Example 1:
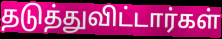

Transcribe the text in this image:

தடுத்துவிட்டார்கள்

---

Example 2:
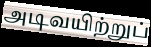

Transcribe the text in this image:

அடிவயிற்றுப்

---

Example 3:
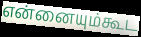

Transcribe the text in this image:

என்னையும்கூட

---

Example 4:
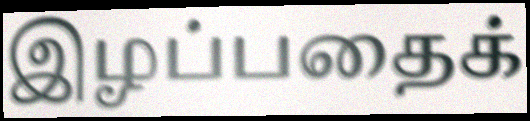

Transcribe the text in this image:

இழப்பதைக்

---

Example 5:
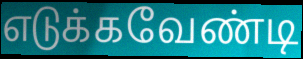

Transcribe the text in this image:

எடுக்கவேண்டி